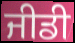
ਜੀਡੀ